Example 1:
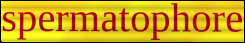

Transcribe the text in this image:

spermatophore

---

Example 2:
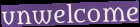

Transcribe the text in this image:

unwelcome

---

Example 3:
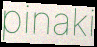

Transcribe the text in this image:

pinaki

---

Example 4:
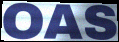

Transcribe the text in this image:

OAS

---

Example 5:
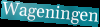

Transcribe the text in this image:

Wageningen